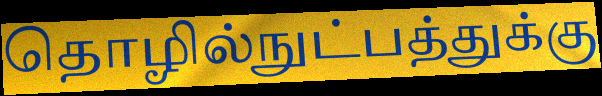
தொழில்நுட்பத்துக்கு